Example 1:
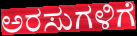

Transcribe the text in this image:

ಅರಸುಗಳಿಗೆ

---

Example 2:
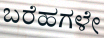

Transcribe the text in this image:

ಬರೆಹಗಳೇ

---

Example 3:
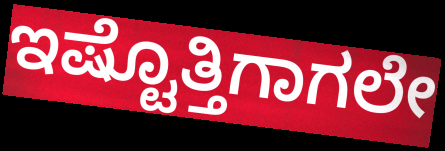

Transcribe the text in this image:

ಇಷ್ಟೊತ್ತಿಗಾಗಲೇ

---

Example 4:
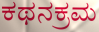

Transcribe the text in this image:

ಕಥನಕ್ರಮ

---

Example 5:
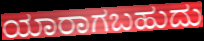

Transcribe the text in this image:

ಯಾರಾಗಬಹುದು